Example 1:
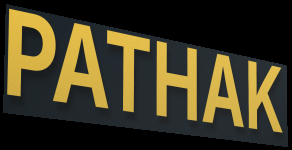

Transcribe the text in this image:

PATHAK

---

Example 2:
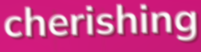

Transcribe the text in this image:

cherishing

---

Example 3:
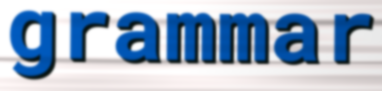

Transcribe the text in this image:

grammar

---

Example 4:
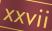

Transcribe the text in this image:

xxvii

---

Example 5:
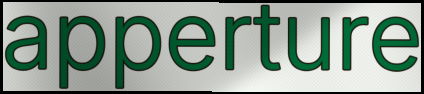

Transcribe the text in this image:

apperture